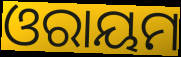
ଓରାୟମ